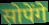
सोपेंगे